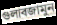
গুলাবজামুন